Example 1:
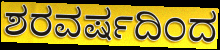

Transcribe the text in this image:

ಶರವರ್ಷದಿಂದ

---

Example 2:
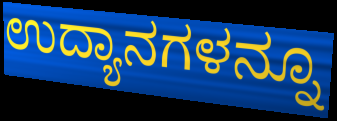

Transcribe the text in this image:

ಉದ್ಯಾನಗಳನ್ನೂ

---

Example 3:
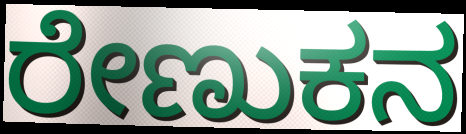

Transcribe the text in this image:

ರೇಣುಕನ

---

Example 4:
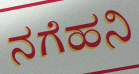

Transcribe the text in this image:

ನಗೆಹನಿ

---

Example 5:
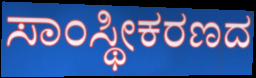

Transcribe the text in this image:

ಸಾಂಸ್ಥೀಕರಣದ